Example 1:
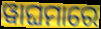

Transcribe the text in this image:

ୱାଘମାରେ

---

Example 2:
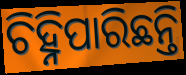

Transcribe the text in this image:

ଚିହ୍ନିପାରିଛନ୍ତି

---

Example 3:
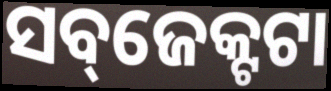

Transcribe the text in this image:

ସବ୍‌ଜେକ୍ଟଟା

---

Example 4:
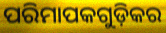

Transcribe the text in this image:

ପରିମାପକଗୁଡ଼ିକର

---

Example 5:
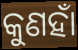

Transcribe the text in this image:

କୁଣହାଁ